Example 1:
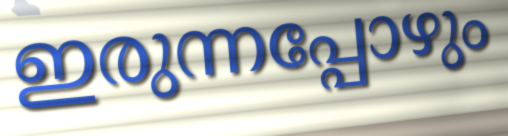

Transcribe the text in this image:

ഇരുന്നപ്പോഴും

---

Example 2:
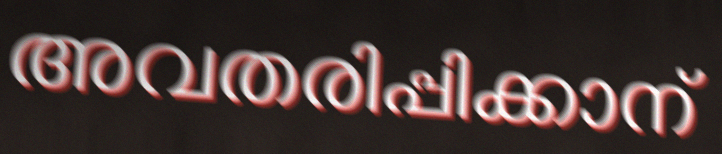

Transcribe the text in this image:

അവതരിപ്പിക്കാന്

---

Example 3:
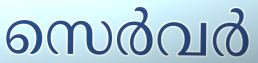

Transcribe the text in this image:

സെർവർ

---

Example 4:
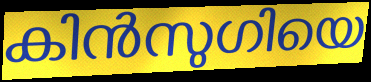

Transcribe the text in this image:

കിൻസുഗിയെ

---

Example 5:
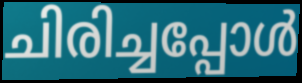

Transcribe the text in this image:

ചിരിച്ചപ്പോൾ